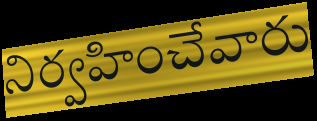
నిర్వహించేవారు